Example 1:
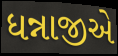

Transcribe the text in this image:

ધન્નાજીએ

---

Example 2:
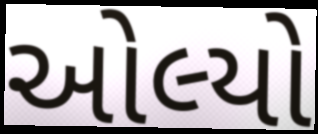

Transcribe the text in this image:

ઓલ્યો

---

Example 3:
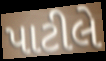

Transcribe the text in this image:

પાટીલે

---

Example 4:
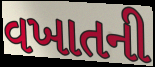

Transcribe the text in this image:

વખાતની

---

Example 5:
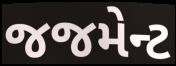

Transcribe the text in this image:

જજમેન્ટ